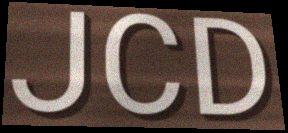
JCD